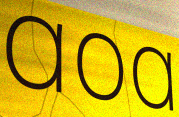
aoa